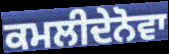
ਕਮਲੀਦੇਨੋਵਾ